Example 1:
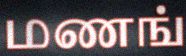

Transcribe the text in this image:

மணங்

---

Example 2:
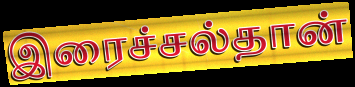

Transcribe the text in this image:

இரைச்சல்தான்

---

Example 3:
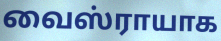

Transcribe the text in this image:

வைஸ்ராயாக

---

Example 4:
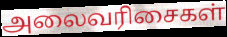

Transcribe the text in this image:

அலைவரிசைகள்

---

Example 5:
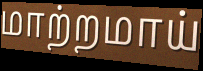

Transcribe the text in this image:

மாற்றமாய்